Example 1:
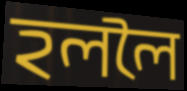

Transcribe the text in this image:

হললৈ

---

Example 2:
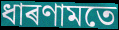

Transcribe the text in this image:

ধাৰণামতে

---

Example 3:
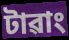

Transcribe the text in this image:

টাৱাং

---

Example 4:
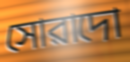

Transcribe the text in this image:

সোৱাদো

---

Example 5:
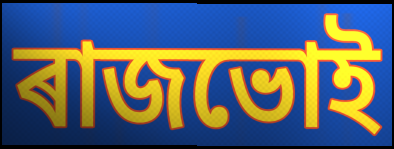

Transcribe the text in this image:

ৰাজভোই